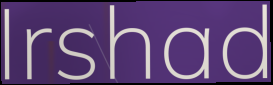
Irshad